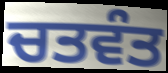
ਚਤਵੰਤ